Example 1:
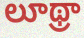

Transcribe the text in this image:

లూథ్రా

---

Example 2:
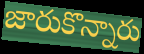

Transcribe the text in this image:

జారుకొన్నారు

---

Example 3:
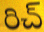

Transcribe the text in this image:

రిచ్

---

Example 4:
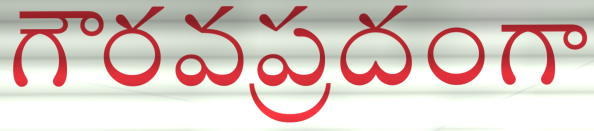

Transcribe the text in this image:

గౌరవప్రదంగా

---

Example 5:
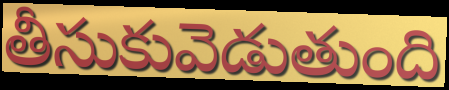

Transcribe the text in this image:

తీసుకువెడుతుంది